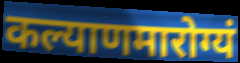
कल्याणमारोग्यं